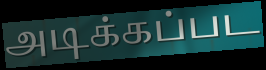
அடிக்கப்பட